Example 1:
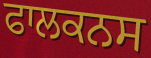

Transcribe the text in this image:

ਫਾਲਕਨਸ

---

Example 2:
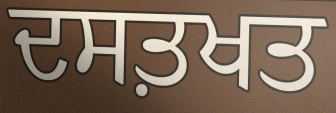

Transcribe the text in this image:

ਦਸਤ਼ਖਤ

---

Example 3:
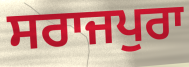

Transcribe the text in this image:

ਸਰਾਜਪੁਰਾ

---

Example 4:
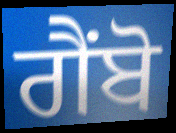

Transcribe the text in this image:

ਗੈਂਬੋ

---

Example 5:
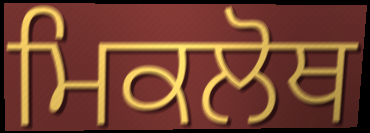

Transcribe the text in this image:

ਮਿਕਲੋਥ